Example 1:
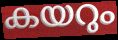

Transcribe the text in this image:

കയറും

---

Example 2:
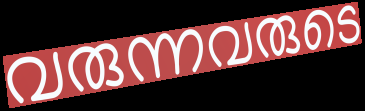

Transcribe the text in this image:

വരുന്നവരുടെ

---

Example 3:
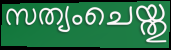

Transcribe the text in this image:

സത്യംചെയ്തു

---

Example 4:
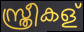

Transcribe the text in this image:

സ്ത്രീകള്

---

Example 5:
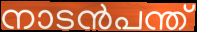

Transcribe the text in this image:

നാടൻപന്ത്